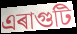
এৰাগুটি